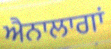
ਐਨਾਲਾਗਾਂ